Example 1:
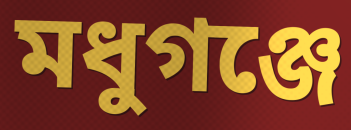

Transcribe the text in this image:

মধুগঞ্জে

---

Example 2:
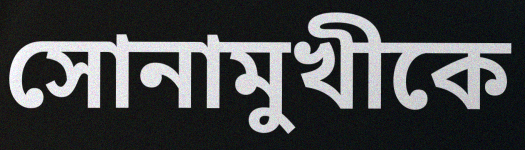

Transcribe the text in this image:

সোনামুখীকে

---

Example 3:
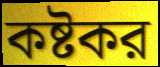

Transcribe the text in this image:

কষ্টকর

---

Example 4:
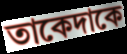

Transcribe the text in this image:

তাকেদাকে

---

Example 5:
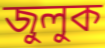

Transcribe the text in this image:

জুলুক